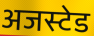
अजस्टेड